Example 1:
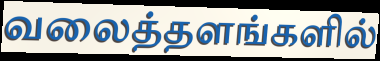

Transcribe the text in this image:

வலைத்தளங்களில்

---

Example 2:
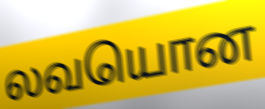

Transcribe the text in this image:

லவயொன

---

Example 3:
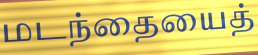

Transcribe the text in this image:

மடந்தையைத்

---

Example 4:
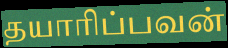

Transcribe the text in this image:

தயாரிப்பவன்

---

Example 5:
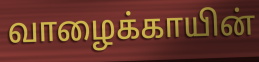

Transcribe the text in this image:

வாழைக்காயின்